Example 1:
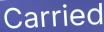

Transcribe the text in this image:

Carried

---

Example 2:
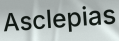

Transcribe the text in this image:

Asclepias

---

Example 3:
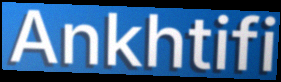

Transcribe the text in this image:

Ankhtifi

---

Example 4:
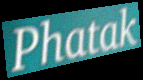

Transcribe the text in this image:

Phatak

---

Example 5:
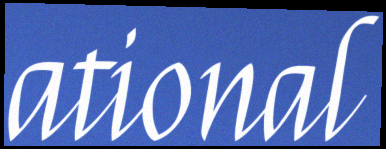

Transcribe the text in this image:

ational